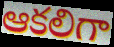
ఆకలిగా